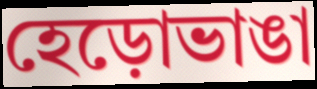
হেড়োভাঙা